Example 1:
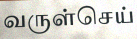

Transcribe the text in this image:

வருள்செய்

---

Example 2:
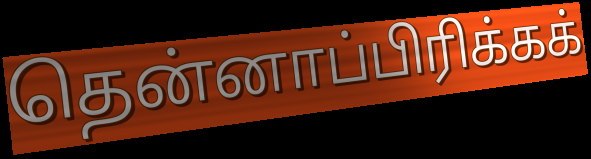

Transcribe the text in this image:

தென்னாப்பிரிக்கக்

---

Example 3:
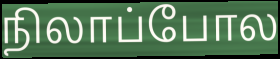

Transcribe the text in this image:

நிலாப்போல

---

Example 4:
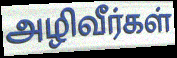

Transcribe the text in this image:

அழிவீர்கள்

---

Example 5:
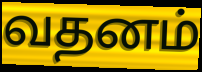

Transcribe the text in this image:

வதனம்